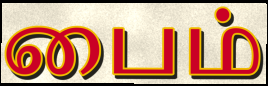
பைம்